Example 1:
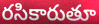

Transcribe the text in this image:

రసికారుతూ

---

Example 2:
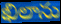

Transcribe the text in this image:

ఖిలాను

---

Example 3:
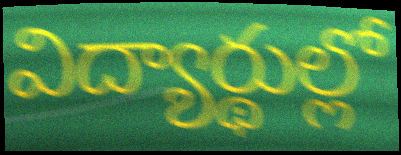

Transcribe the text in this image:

విద్యార్థుల్లో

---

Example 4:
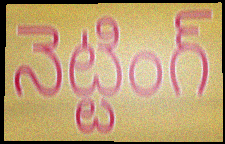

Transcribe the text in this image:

నెట్టింగ్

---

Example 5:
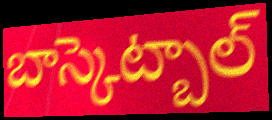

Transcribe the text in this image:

బాస్కెట్బాల్